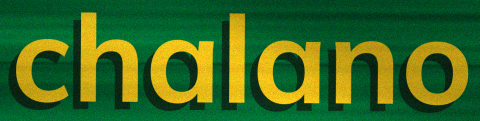
chalano